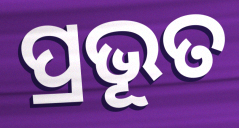
ପ୍ରଭୂତ